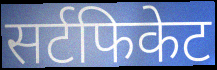
सर्टफिकेट